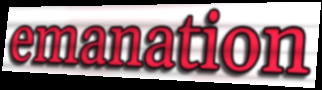
emanation